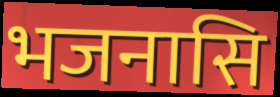
भजनासि